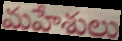
మహేశులు